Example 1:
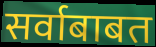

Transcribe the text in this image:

सर्वाबाबत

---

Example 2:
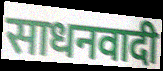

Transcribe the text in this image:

साधनवादी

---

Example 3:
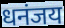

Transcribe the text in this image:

धनंजय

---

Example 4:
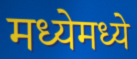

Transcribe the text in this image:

मध्येमध्ये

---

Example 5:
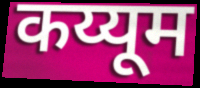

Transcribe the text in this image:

कय्यूम